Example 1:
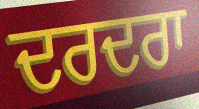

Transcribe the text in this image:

ਦਰਦਰਾ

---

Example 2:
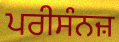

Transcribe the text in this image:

ਪਰੀਸੰਨਜ਼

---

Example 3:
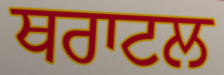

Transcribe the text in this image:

ਥਰਾਟਲ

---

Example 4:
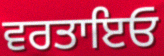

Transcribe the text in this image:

ਵਰਤਾਇਓ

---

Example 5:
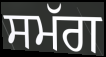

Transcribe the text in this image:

ਸਮੱਗ